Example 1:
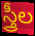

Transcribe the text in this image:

స్త్రీల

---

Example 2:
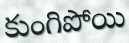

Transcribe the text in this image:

కుంగిపోయి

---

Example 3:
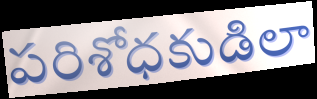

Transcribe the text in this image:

పరిశోధకుడిలా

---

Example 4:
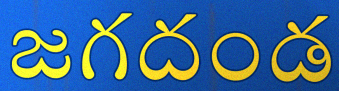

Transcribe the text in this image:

జగదండ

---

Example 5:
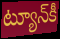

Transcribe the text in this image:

ట్యూన్‌కీ